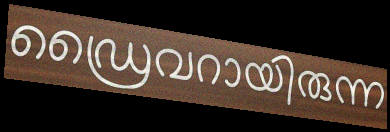
ഡ്രൈവറായിരുന്ന